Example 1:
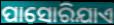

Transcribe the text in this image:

ପାସୋରିଯାଏ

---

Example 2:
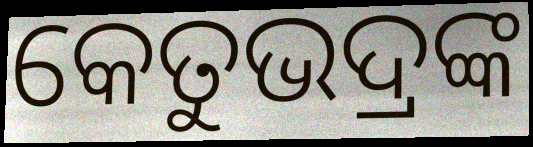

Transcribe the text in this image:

କେତୁଭଦ୍ରଙ୍କ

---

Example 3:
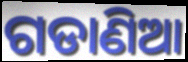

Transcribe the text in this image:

ଗଡାଣିଆ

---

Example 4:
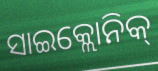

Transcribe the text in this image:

ସାଇକ୍ଲୋନିକ୍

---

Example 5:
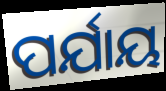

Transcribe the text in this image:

ପର୍ଯାୟ